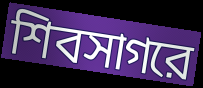
শিবসাগরে